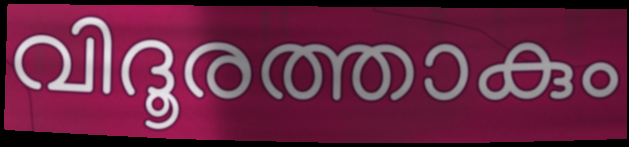
വിദൂരത്താകും